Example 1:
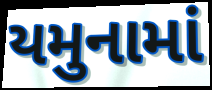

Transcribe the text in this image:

યમુનામાં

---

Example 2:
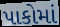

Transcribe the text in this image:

પાકોમાં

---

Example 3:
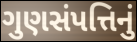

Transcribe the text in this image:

ગુણસંપત્તિનું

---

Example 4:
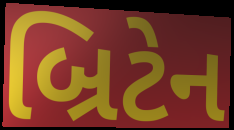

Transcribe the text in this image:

બ્રિટેન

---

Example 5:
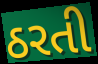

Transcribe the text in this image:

ઠરતી